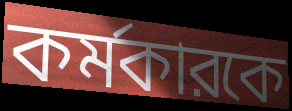
কর্মকারকে